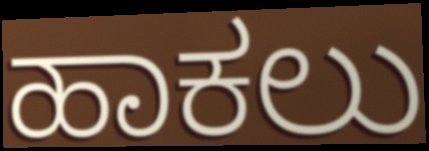
ಹಾಕಲು